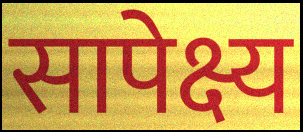
सापेक्ष्य